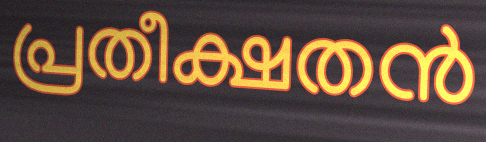
പ്രതീക്ഷതൻ